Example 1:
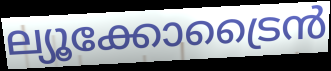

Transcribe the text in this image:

ല്യൂക്കോട്രൈൻ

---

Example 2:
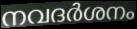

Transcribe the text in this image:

നവദർശനം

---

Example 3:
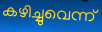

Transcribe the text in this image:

കഴിച്ചുവെന്ന്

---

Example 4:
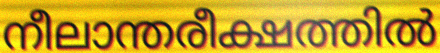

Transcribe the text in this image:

നീലാന്തരീക്ഷത്തിൽ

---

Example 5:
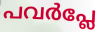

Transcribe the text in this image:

പവർപ്ലേ